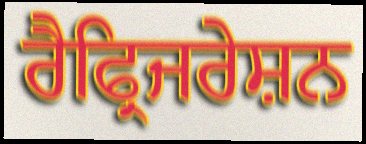
ਰੈਫ੍ਰਿਜਰੇਸ਼ਨ